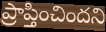
ప్రాప్తించిందని